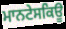
ਮਾਨਟੇਸਕਿਊ